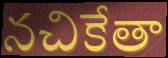
నచికేతా